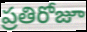
ప్రతిరోజూ